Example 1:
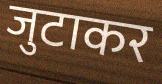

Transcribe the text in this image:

जुटाकर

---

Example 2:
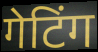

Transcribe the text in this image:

गेटिंग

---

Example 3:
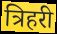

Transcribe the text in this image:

त्रिहरी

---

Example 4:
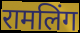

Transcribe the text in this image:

रामलिंग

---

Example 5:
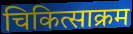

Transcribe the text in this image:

चिकित्साक्रम